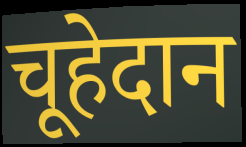
चूहेदान